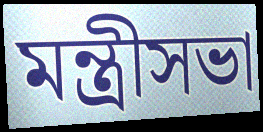
মন্ত্রীসভা